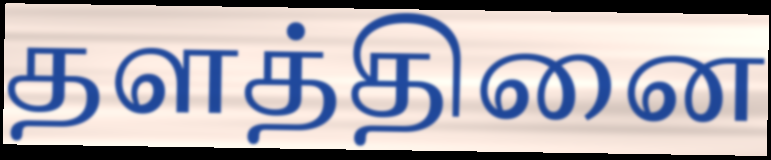
தளத்தினை